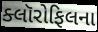
ક્લૉરોફિલના